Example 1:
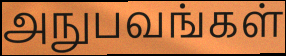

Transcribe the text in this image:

அநுபவங்கள்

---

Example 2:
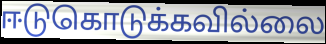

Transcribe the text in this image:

ஈடுகொடுக்கவில்லை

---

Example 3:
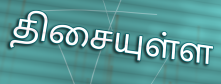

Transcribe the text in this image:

திசையுள்ள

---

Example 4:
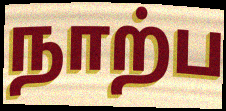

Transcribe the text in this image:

நாற்ப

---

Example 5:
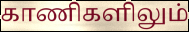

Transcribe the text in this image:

காணிகளிலும்